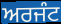
ਅਰਜੰਟ